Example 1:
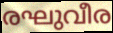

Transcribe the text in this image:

രഘുവീര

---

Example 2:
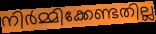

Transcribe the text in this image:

നിർമ്മിക്കേണ്ടതില്ല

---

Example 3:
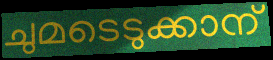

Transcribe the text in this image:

ചുമടെടുക്കാന്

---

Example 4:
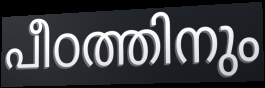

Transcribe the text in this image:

പീഠത്തിനും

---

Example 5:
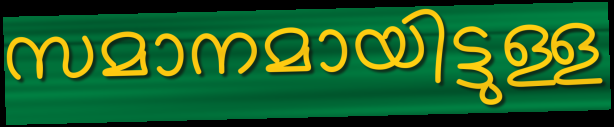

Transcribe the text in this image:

സമാനമായിട്ടുള്ള